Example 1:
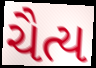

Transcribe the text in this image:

ચૈત્ય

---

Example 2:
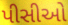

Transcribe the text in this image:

પીસીઓ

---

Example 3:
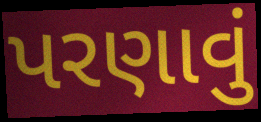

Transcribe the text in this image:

પરણાવું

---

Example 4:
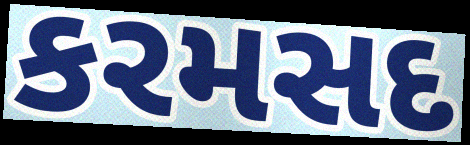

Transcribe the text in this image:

કરમસદ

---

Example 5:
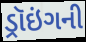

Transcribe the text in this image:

ડ્રૉઇંગની